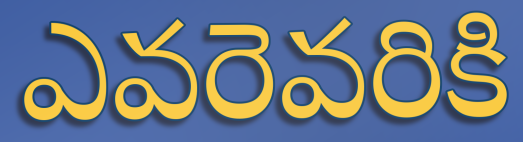
ఎవరెవరికి